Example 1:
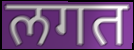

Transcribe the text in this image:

लगत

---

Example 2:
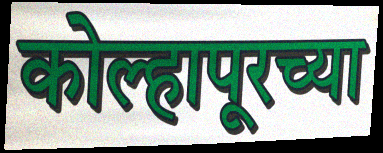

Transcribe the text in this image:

कोल्हापूरच्या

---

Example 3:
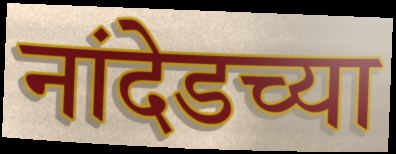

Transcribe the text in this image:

नांदेडच्या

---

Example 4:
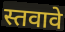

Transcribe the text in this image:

स्तवावे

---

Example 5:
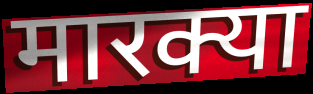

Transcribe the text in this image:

मारक्या